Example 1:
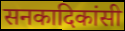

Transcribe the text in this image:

सनकादिकांसी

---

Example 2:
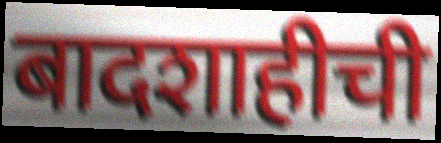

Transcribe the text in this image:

बादशाहीची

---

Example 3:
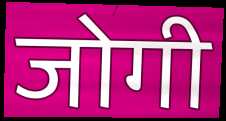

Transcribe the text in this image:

जोगी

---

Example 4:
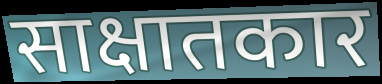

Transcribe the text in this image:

साक्षातकार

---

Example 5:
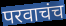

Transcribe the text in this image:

परवाचंच